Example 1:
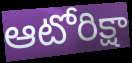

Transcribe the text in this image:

ఆటోరిక్షా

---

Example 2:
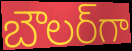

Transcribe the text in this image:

బౌలర్‌గా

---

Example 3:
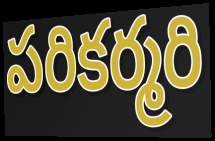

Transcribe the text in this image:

పరికర్మరి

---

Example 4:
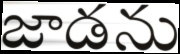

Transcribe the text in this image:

జాడను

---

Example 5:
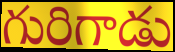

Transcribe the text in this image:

గురిగాడు